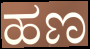
ಹಣ